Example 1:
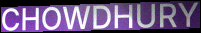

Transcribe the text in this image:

CHOWDHURY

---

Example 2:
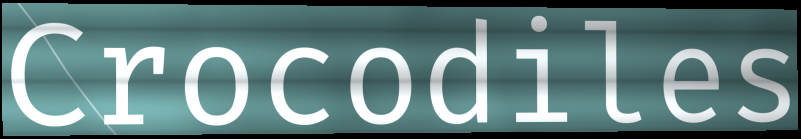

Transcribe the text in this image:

Crocodiles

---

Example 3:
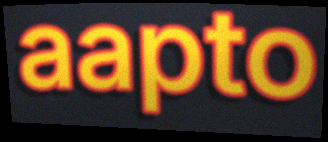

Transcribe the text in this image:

aapto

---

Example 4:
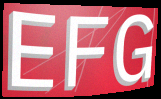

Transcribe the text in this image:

EFG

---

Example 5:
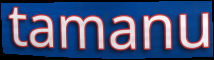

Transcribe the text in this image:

tamanu